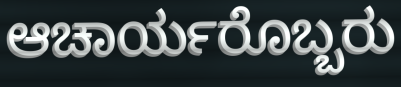
ಆಚಾರ್ಯರೊಬ್ಬರು